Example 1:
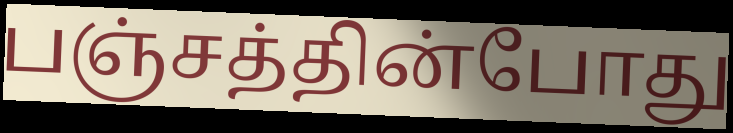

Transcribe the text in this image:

பஞ்சத்தின்போது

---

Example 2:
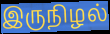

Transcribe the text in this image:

இருநிழல்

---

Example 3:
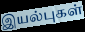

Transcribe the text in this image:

இயல்புகள்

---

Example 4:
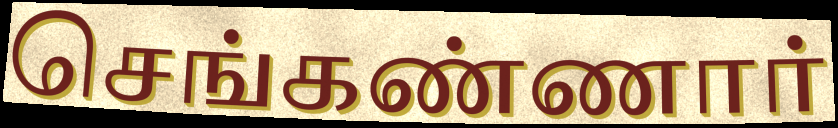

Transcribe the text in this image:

செங்கண்ணார்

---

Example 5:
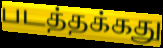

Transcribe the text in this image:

படத்தக்கது